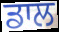
ਡਾਲ